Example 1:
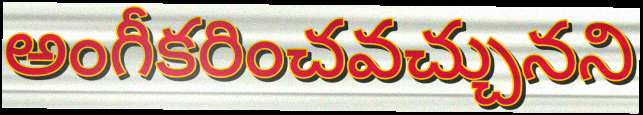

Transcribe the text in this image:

అంగీకరించవచ్చునని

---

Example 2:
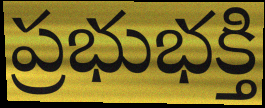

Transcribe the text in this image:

ప్రభుభక్తి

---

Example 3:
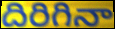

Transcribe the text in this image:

దిరిగినా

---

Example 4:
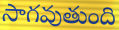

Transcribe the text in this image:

సాగవుతుంది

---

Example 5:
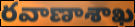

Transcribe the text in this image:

రవాణాశాఖ